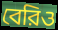
বেরিও